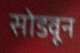
सोडवून